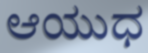
ಆಯುಧ